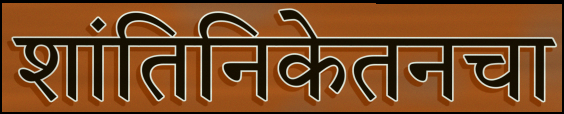
शांतिनिकेतनचा